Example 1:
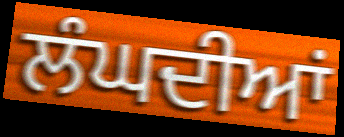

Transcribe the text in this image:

ਲੰਘਦੀਆਂ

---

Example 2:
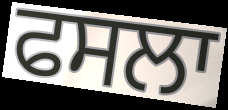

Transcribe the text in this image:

ਫਸਲਾ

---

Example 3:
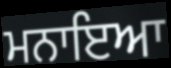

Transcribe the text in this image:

ਮਨਾਇਆ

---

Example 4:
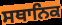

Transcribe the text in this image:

ਸਥਾਨਿਕ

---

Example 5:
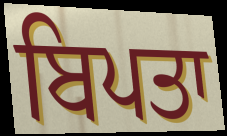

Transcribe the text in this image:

ਬਿਪਤਾ